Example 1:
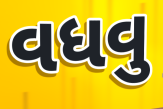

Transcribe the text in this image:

વધવુ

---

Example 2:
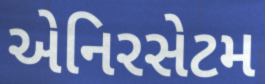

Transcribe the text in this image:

એનિરસેટમ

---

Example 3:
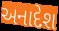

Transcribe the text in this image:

અનાદેશ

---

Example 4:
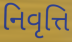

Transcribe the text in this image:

નિવૃત્તિ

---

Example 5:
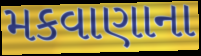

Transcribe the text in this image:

મકવાણાના